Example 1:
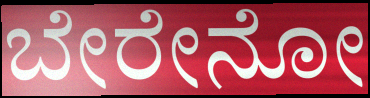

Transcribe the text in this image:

ಬೇರೇನೋ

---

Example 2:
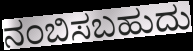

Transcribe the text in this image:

ನಂಬಿಸಬಹುದು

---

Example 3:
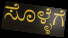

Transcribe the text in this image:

ಸೊಳ್ಳೆಗೆ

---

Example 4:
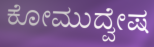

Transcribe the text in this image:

ಕೋಮುದ್ವೇಷ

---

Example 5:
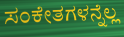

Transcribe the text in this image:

ಸಂಕೇತಗಳನ್ನೆಲ್ಲ